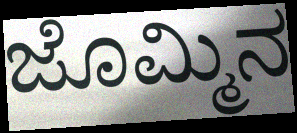
ಜೊಮ್ಮಿನ